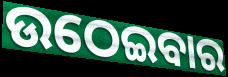
ଉଠେଇବାର